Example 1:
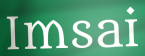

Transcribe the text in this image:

Imsai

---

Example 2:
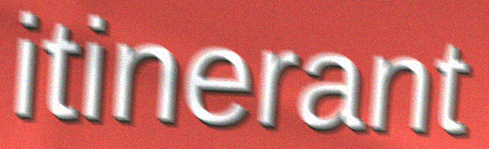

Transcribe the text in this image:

itinerant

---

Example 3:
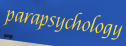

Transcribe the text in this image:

parapsychology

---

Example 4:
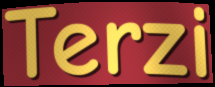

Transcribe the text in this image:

Terzi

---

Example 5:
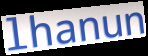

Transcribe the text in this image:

lhanun